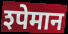
श्पेमान